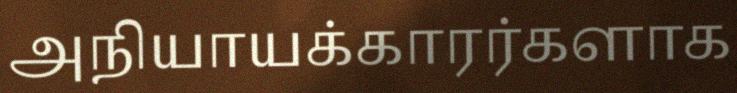
அநியாயக்காரர்களாக